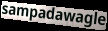
sampadawagle